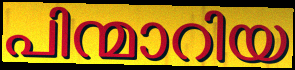
പിന്മാറിയ